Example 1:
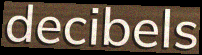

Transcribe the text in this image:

decibels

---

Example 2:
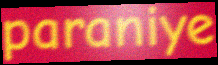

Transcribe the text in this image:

paraniye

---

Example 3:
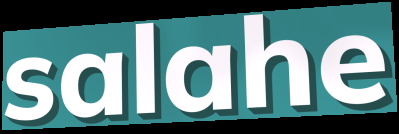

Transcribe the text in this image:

salahe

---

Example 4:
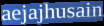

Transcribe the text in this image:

aejajhusain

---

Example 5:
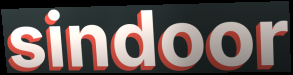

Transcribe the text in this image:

sindoor